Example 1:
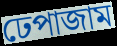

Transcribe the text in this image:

ঢেপাজাম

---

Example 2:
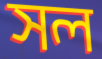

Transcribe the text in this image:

সল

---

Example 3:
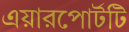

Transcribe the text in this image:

এয়ারপোর্টটি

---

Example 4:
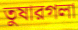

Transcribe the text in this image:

তুষারগলা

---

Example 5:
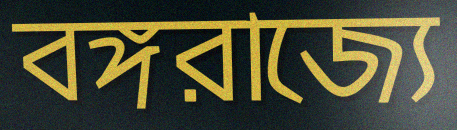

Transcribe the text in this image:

বঙ্গরাজ্যে